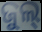
ଜୁଲ୍